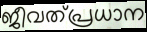
ജീവത്പ്രധാന